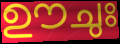
ഊചുഃ